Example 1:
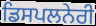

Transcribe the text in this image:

ਡਿਸਪਲਨੇਰੀ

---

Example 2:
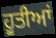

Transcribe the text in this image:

ਹੂਤੀਆਂ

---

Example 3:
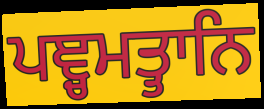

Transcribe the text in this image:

ਪਞ੍ਚਮਤ੍ਤਾਨਿ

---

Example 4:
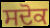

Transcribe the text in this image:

ਸਦੋਕ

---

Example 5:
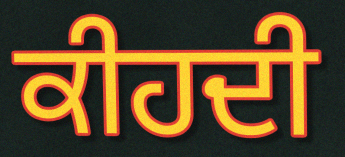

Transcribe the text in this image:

ਕੀਹਦੀ